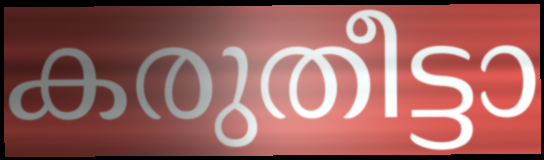
കരുതീട്ടാ